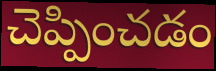
చెప్పించడం